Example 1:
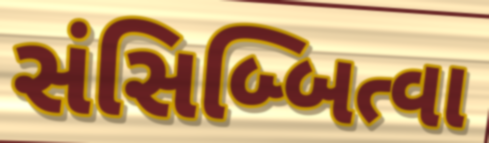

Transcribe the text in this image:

સંસિબ્બિત્વા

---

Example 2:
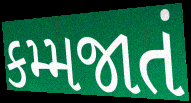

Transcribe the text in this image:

કમ્મજાતં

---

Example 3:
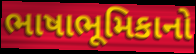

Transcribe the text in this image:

ભાષાભૂમિકાનો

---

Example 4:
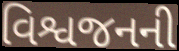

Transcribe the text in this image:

વિશ્વજનની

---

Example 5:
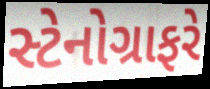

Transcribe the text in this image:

સ્ટેનોગ્રાફરે